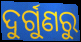
ଦୁର୍ଗୁଣରୁ